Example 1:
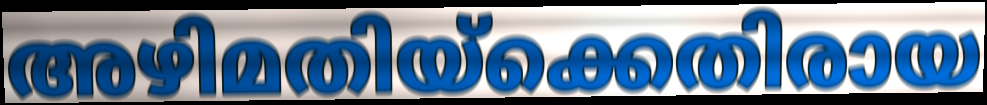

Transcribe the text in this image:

അഴിമതിയ്ക്കെതിരായ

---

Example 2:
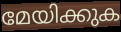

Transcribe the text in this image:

മേയിക്കുക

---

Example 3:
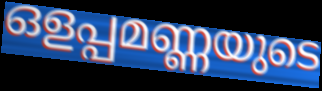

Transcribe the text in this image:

ഒളപ്പമണ്ണയുടെ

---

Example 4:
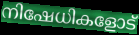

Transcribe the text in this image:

നിഷേധികളോട്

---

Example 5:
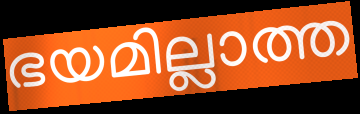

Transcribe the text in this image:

ഭയമില്ലാത്ത